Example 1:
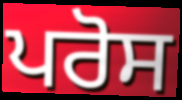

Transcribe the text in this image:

ਪਰੋਸ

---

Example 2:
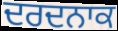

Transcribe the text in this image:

ਦਰਦਨਾਕ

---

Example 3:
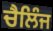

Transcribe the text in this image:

ਚੈਲਿੰਜ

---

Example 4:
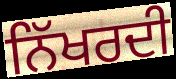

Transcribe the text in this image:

ਨਿੱਖਰਦੀ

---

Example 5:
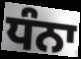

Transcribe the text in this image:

ਧੰਨਾ